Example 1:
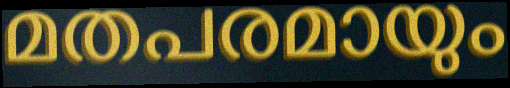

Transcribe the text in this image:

മതപരമായും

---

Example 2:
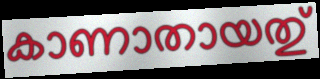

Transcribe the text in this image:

കാണാതായതു്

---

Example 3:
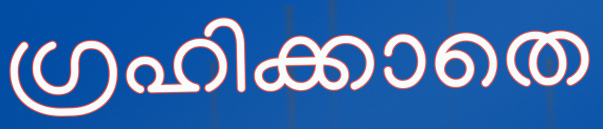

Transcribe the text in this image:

ഗ്രഹിക്കാതെ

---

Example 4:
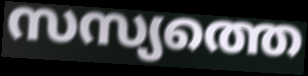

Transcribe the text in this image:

സസ്യത്തെ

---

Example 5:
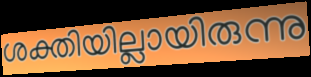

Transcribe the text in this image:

ശക്തിയില്ലായിരുന്നു